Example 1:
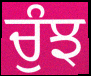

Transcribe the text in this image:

ਚੁੰਝ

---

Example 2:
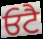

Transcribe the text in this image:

ਓਟੈ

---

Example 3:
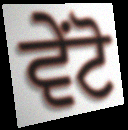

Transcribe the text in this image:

ਵੇਂਟੋ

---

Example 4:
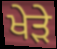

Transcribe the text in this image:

ਖੇੜੇ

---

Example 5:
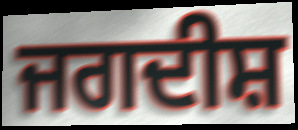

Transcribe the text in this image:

ਜਗਦੀਸ਼